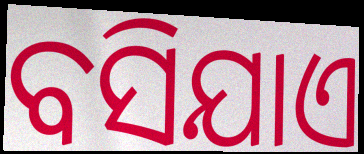
ବସିଯାଏ